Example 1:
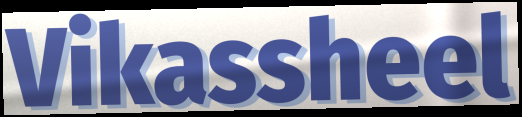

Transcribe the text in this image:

Vikassheel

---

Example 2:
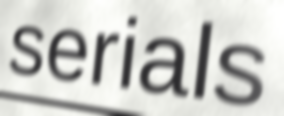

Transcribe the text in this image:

serials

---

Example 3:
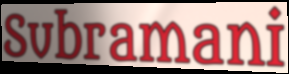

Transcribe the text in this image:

Subramani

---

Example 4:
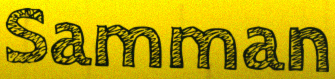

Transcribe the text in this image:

Samman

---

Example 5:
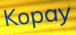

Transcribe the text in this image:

Kopay